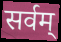
सर्वम्